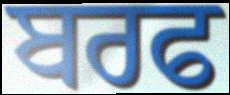
ਬਰਫ